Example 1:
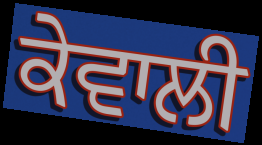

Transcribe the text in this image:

ਕੇਵਾਲੀ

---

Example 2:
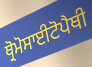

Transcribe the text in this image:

ਥ੍ਰੋਮੋਸਾਈਟੋਪੈਥੀ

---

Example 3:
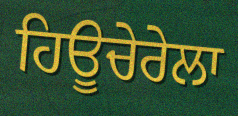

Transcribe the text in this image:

ਹਿਊਚੇਰੇਲਾ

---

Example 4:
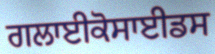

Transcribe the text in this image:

ਗਲਾਈਕੋਸਾਈਡਸ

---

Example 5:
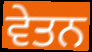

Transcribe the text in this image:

ਵੇਤਨ